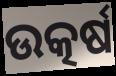
ଉତ୍କର୍ଷ